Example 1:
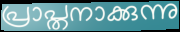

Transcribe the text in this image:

പ്രാപ്തനാക്കുന്നു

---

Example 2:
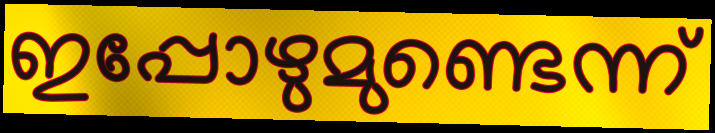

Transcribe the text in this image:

ഇപ്പോഴുമുണ്ടെന്ന്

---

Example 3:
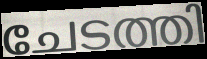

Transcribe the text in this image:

ചേടത്തി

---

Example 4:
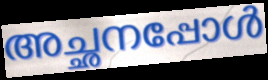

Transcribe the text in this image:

അച്ഛനപ്പോൾ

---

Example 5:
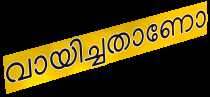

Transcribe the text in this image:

വായിച്ചതാണോ